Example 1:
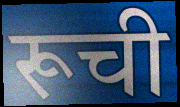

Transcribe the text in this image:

रूची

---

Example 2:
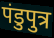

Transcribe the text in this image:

पंडुपुत्र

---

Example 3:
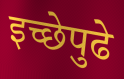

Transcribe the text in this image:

इच्छेपुढे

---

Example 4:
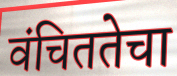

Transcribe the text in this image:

वंचिततेचा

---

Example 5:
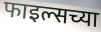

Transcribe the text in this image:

फाइल्सच्या